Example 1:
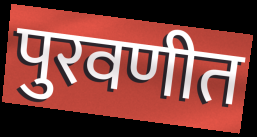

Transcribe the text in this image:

पुरवणीत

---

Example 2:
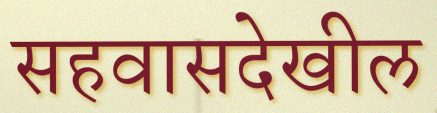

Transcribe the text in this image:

सहवासदेखील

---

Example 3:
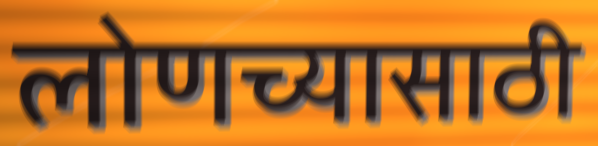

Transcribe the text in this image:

लोणच्यासाठी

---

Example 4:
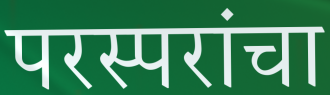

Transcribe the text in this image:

परस्परांचा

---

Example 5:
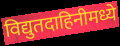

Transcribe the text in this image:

विद्युतदाहिनीमध्ये